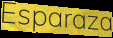
Esparaza